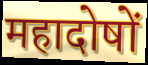
महादोषों